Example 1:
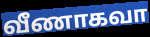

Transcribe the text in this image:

வீணாகவா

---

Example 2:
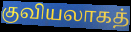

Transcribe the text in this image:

குவியலாகத்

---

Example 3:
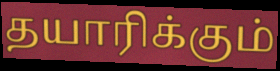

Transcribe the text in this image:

தயாரிக்கும்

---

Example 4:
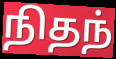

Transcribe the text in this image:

நிதந்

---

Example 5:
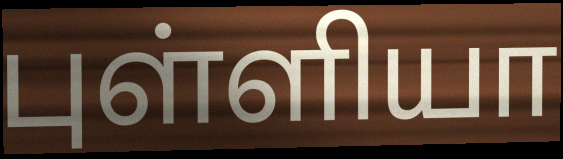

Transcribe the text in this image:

புள்ளியா